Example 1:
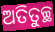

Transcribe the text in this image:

ଅତିତୁଚ୍ଛ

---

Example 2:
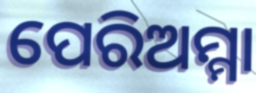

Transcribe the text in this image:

ପେରିଅମ୍ମା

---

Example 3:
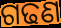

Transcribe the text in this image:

ଗଢଣ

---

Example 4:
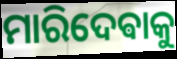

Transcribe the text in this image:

ମାରିଦେଵାକୁ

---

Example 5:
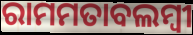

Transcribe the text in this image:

ରାମମତାବଲମ୍ବୀ